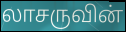
லாசருவின்